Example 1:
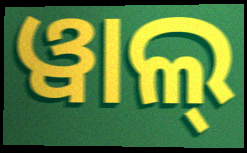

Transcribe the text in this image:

ୱାଲ୍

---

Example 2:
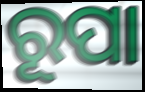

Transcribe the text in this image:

ରୂପା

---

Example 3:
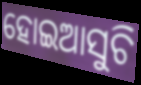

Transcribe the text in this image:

ହୋଇଆସୁଚି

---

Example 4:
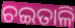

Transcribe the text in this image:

ଚଇତାଳି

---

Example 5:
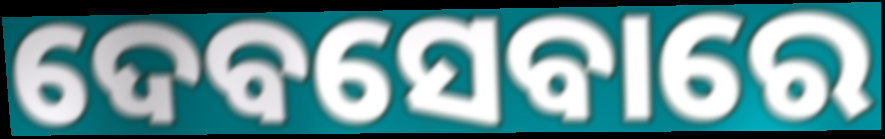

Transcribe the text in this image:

ଦେବସେବାରେ